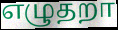
எழுதறா